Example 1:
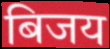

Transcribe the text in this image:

बिजय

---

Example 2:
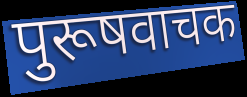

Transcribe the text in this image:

पुरूषवाचक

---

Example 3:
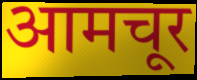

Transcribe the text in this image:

आमचूर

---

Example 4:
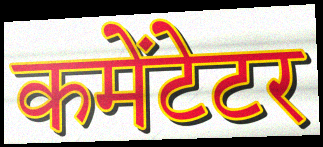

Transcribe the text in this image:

कमेंटेटर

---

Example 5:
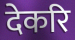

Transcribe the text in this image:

देकरि